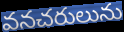
వనచరులును